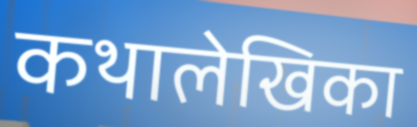
कथालेखिका